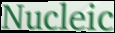
Nucleic